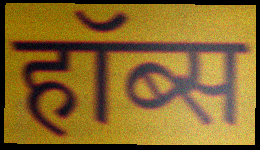
हॉब्स